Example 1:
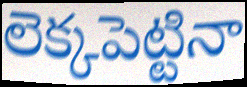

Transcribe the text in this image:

లెక్కపెట్టినా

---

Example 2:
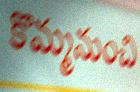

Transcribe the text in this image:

కొమ్మనుంచి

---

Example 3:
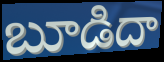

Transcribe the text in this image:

బూడిదా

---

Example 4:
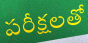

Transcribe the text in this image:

పరీక్షలతో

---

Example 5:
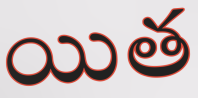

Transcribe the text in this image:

యిత